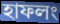
হাফলং